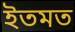
ইতমত